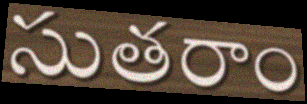
సుతరాం